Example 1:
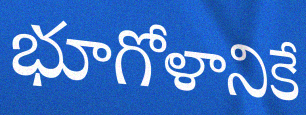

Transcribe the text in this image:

భూగోళానికే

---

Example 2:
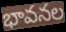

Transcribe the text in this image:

భావనల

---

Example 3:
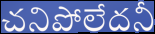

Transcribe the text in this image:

చనిపోలేదనీ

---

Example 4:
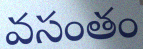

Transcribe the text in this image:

వసంతం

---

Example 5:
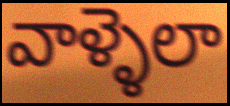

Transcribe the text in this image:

వాళ్ళెలా